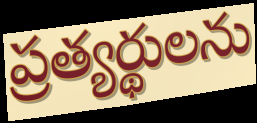
ప్రత్యర్థులను